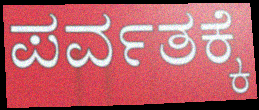
ಪರ್ವತಕ್ಕೆ